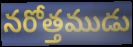
నరోత్తముడు